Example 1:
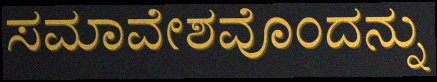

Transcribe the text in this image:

ಸಮಾವೇಶವೊಂದನ್ನು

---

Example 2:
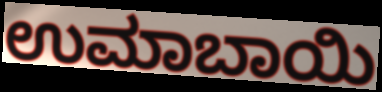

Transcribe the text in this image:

ಉಮಾಬಾಯಿ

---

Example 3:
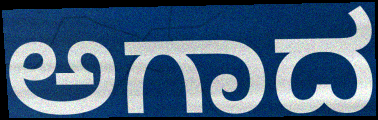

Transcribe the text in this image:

ಅಗಾದ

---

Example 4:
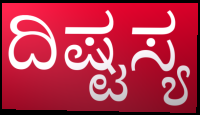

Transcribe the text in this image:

ದಿಷ್ಟಸ್ಯ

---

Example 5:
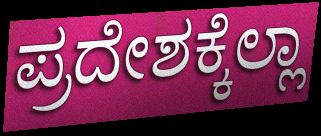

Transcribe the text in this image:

ಪ್ರದೇಶಕ್ಕೆಲ್ಲಾ